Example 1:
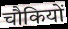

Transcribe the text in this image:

चौकियों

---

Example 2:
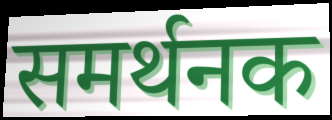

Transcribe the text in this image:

समर्थनक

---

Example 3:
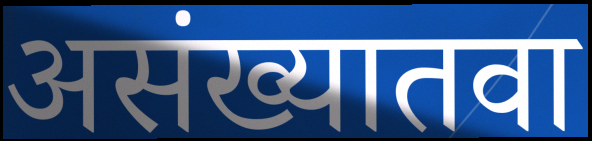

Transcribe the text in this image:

असंख्यातवा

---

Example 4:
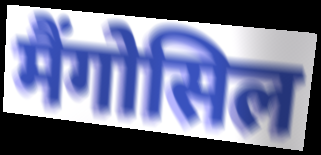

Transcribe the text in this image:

मैंगोसिल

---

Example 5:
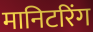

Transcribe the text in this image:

मानिटरिंग